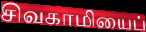
சிவகாமியைப்